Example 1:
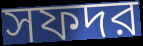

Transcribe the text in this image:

সফদর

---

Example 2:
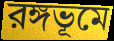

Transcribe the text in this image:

রঙ্গভূমে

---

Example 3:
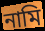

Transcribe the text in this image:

নামি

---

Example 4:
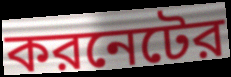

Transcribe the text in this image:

করনেটের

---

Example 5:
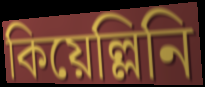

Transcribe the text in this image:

কিয়েল্লিনি